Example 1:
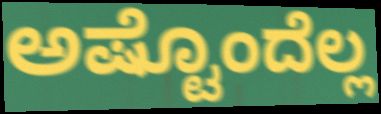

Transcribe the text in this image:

ಅಷ್ಟೊಂದೆಲ್ಲ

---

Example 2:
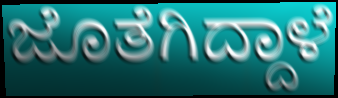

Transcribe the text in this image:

ಜೊತೆಗಿದ್ದಾಳೆ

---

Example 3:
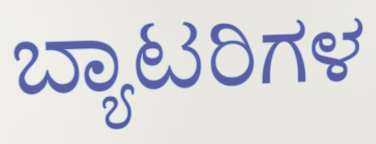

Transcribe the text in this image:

ಬ್ಯಾಟರಿಗಳ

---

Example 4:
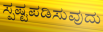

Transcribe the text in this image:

ಸ್ಪಷ್ಟಪಡಿಸುವುದು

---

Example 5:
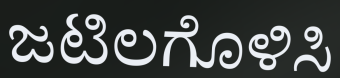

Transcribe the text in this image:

ಜಟಿಲಗೊಳಿಸಿ